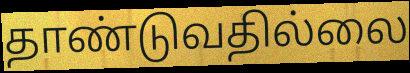
தாண்டுவதில்லை